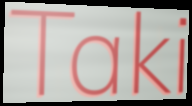
Taki